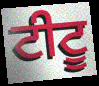
ਟੀਟੂ